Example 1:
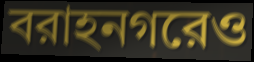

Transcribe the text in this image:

বরাহনগরেও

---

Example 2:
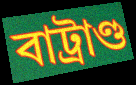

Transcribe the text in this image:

বাট্রাণ্ড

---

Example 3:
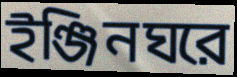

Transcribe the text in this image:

ইঞ্জিনঘরে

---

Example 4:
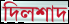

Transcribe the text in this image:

দিলশাদ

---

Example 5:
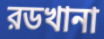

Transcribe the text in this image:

রডখানা